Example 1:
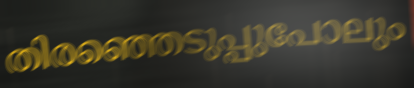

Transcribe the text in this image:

തിരഞ്ഞെടുപ്പുപോലും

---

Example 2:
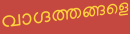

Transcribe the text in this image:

വാഗ്ദത്തങ്ങളെ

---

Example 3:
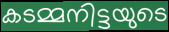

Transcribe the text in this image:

കടമ്മനിട്ടയുടെ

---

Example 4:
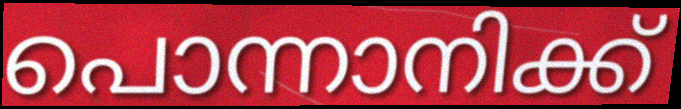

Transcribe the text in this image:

പൊന്നാനിക്ക്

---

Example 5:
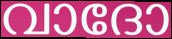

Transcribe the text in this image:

വാദോ